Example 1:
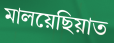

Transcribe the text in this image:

মালয়েছিয়াত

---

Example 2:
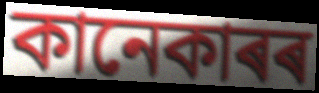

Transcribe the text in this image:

কানেকাৰৰ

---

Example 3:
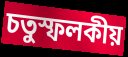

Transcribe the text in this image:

চতুস্ফলকীয়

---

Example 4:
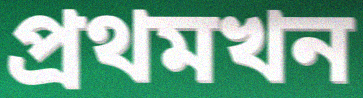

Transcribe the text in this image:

প্ৰথমখন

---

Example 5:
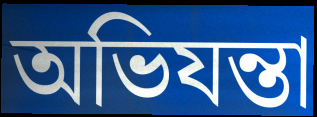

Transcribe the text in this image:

অভিযন্তা